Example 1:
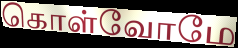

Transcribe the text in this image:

கொள்வோமே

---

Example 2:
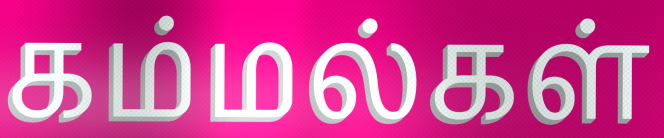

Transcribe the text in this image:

கம்மல்கள்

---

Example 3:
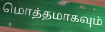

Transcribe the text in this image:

மொத்தமாகவும்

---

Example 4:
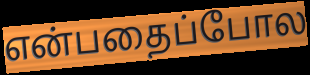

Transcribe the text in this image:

என்பதைப்போல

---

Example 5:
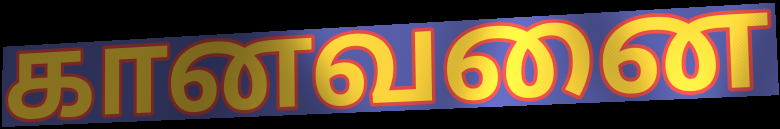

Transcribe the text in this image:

கானவனை